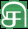
சி